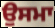
ਉਸਮਾ